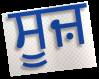
ਸੂਜ਼